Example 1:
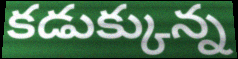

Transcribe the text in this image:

కడుక్కున్న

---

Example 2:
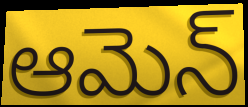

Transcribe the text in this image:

ఆమెన్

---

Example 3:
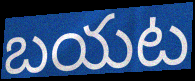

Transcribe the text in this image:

బయట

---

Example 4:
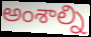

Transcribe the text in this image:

అంశాల్ని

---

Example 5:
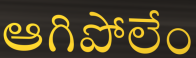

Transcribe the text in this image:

ఆగిపోలేం